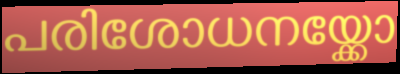
പരിശോധനയ്ക്കോ